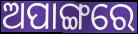
ଅପାଙ୍ଗରେ